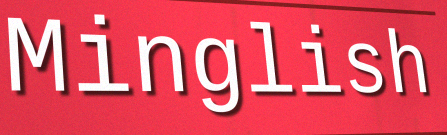
Minglish